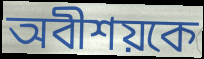
অবীশয়কে